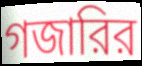
গজারির